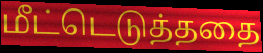
மீட்டெடுத்ததை